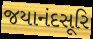
જયાનંદસૂરિ